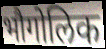
भौगोलिक